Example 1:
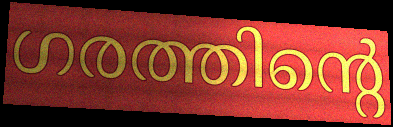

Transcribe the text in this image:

ഗരത്തിന്റെ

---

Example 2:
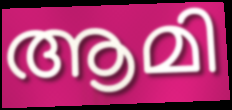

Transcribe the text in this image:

ആമി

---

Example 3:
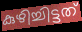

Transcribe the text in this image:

കുഴിച്ചിട്ടത്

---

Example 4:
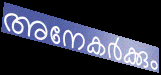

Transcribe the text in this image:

അനേകർക്കും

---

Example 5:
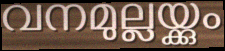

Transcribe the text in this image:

വനമുല്ലയ്ക്കും